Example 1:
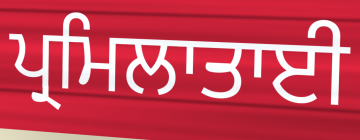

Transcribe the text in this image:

ਪ੍ਰਮਿਲਾਤਾਈ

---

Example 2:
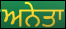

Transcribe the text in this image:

ਅਨੇਤਾ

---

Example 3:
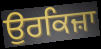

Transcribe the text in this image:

ਉਰਕਿਜ਼ਾ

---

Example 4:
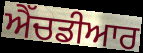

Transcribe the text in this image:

ਐੱਚਡੀਆਰ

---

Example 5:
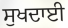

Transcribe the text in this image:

ਸੁਖਦਾਈ